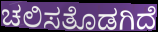
ಚಲಿಸತೊಡಗಿದೆ